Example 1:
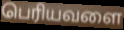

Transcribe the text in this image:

பெரியவளை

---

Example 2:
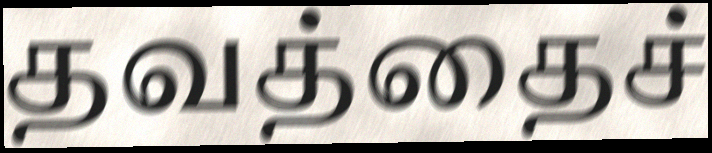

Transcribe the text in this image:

தவத்தைச்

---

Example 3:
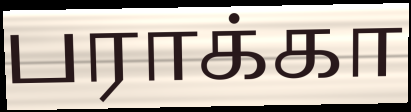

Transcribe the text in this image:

பராக்கா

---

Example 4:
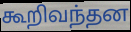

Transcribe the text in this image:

கூறிவந்தன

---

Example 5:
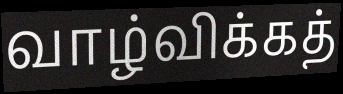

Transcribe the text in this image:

வாழ்விக்கத்